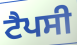
ਟੈਪਸੀ